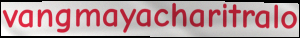
vangmayacharitralo